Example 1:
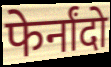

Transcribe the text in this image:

फेर्नांदो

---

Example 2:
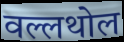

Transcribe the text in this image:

वल्लथोल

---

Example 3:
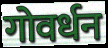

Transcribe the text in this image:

गोवर्धन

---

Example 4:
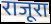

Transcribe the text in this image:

राजूरा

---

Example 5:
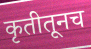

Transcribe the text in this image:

कृतीतूनच